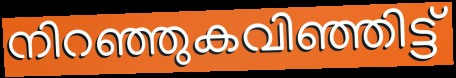
നിറഞ്ഞുകവിഞ്ഞിട്ട്